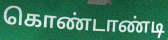
கொண்டாண்டி